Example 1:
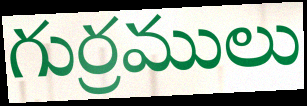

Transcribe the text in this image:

గుర్రములు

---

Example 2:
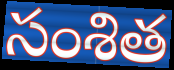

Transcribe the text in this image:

సంశిత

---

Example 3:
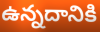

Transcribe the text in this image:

ఉన్నదానికి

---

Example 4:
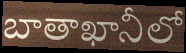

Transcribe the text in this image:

బాతాఖానీలో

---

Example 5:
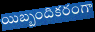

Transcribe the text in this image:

యిబ్బందికరంగా